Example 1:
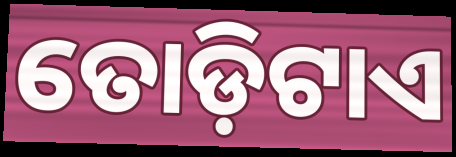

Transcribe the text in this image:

ତୋଡ଼ିଟାଏ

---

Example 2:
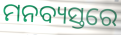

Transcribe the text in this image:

ମନବ୍ୟସ୍ତରେ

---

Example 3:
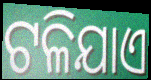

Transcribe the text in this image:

ଟଳିଯାଏ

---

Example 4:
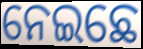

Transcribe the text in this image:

ନେଇଛେ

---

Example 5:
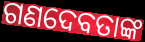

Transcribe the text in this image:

ଗଣଦେବତାଙ୍କ